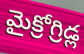
మైక్రోగ్రిడ్ల